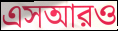
এসআরও